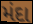
મંદા